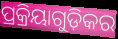
ପ୍ରକ୍ରିୟାଗୁଡ଼ିକର